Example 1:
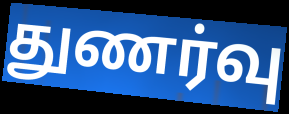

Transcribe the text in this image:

துணர்வு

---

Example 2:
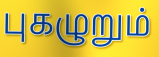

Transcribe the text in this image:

புகழுறும்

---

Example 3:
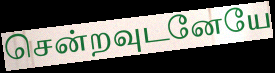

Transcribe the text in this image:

சென்றவுடனேயே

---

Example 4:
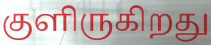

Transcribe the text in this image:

குளிருகிறது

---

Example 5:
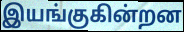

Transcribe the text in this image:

இயங்குகின்றன